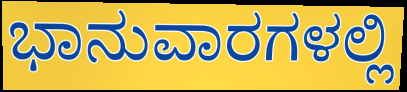
ಭಾನುವಾರಗಳಲ್ಲಿ